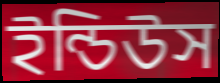
ইন্ডিউস